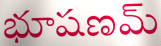
భూషణమ్